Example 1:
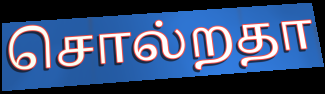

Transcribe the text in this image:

சொல்றதா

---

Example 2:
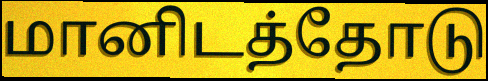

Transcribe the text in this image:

மானிடத்தோடு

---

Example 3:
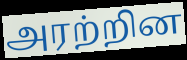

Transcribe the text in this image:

அரற்றின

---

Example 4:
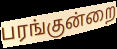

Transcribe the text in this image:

பரங்குன்றை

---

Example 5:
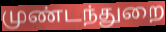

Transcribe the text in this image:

முண்டந்துறை